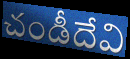
చండీదేవి